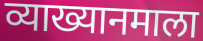
व्याख्यानमाला